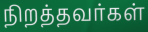
நிறத்தவர்கள்